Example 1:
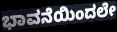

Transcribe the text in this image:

ಭಾವನೆಯಿಂದಲೇ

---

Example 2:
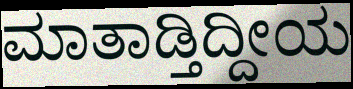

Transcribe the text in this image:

ಮಾತಾಡ್ತಿದ್ದೀಯ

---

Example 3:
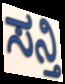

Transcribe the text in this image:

ಸನ್ತಿ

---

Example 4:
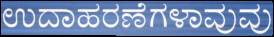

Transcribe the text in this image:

ಉದಾಹರಣೆಗಳಾವುವು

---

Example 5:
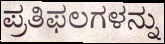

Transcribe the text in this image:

ಪ್ರತಿಫಲಗಳನ್ನು